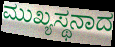
ಮುಖ್ಯಸ್ಥನಾದ